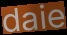
daie